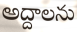
అద్దాలను